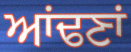
ਆਂਢਣਾਂ